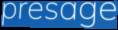
presage